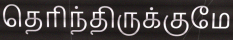
தெரிந்திருக்குமே